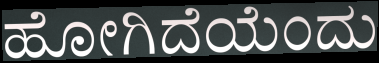
ಹೋಗಿದೆಯೆಂದು